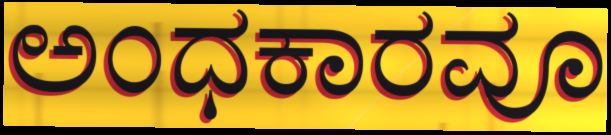
ಅಂಧಕಾರವೂ